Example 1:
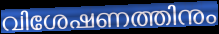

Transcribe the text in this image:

വിശേഷണത്തിനും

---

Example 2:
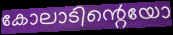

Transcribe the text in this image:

കോലാടിന്റെയോ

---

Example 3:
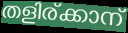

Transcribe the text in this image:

തളിര്ക്കാന്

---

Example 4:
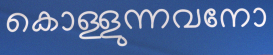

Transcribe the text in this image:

കൊള്ളുന്നവനോ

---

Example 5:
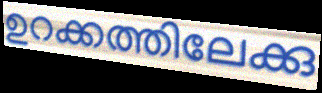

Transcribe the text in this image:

ഉറക്കത്തിലേക്കു